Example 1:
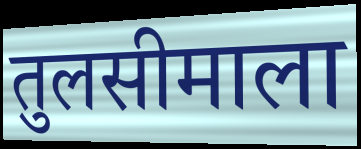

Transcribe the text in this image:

तुलसीमाला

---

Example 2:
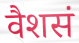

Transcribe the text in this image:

वैशसं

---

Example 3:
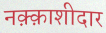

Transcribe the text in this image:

नक़्क़ाशीदार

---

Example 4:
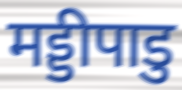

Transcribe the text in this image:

मड्डीपाडु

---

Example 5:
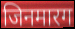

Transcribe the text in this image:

जिनमारग